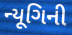
ન્યૂગિની